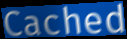
Cached